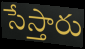
సేస్తారు